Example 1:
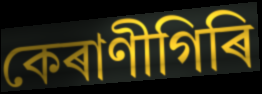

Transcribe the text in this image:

কেৰাণীগিৰি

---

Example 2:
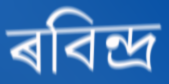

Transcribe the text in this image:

ৰবিন্দ্ৰ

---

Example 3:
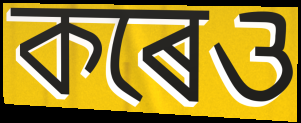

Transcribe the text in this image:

কৰেও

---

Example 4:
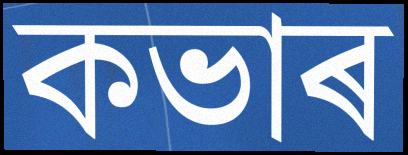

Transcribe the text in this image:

কভাৰ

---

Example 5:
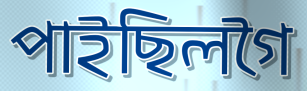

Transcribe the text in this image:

পাইছিলগৈ